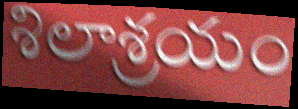
శిలాశ్రయం